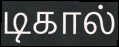
டிகால்